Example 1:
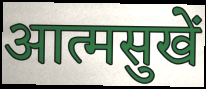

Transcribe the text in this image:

आत्मसुखें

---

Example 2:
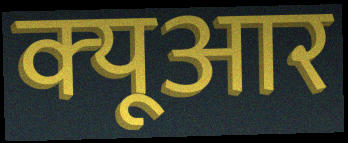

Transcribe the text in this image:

क्‍यूआर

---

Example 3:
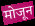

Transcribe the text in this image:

मोजून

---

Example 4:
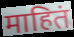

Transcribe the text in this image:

माहितं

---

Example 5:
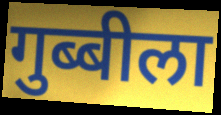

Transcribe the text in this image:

गुब्बीला